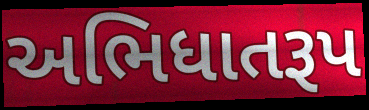
અભિધાતરૂપ